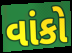
વાંકો